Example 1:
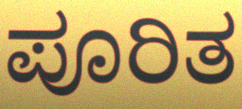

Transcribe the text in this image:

ಪೂರಿತ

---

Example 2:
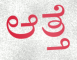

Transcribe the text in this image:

ಆತ್ತೆ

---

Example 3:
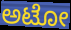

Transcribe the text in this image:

ಅಟೋ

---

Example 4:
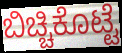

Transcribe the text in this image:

ಬಿಚ್ಚಿಕೊಟ್ಟೆ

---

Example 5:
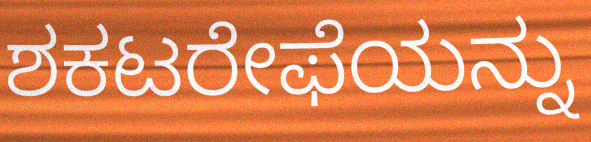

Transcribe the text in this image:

ಶಕಟರೇಫೆಯನ್ನು